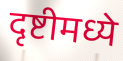
दृष्टीमध्ये